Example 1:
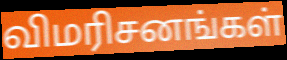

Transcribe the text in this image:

விமரிசனங்கள்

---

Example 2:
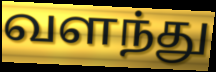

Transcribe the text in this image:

வளந்து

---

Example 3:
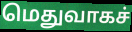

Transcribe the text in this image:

மெதுவாகச்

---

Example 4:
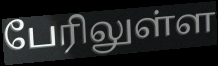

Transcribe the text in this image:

பேரிலுள்ள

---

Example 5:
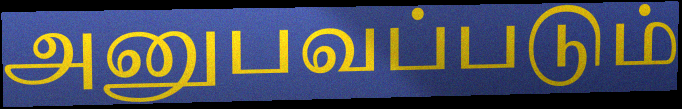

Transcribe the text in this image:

அனுபவப்படும்